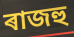
ৰাজহু